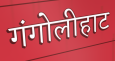
गंगोलीहाट